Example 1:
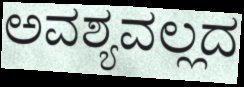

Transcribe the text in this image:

ಅವಶ್ಯವಲ್ಲದ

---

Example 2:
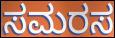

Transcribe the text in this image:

ಸಮರಸ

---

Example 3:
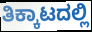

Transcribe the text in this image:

ತಿಕ್ಕಾಟದಲ್ಲಿ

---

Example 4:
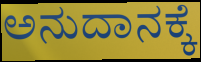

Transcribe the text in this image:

ಅನುದಾನಕ್ಕೆ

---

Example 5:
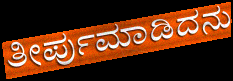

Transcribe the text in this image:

ತೀರ್ಪುಮಾಡಿದನು